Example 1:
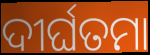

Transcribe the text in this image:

ଦୀର୍ଘତମା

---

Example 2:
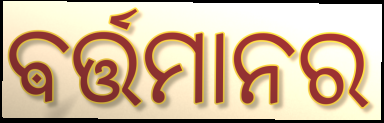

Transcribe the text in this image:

ଵର୍ତ୍ତମାନର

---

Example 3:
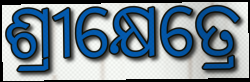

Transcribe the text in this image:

ଶ୍ରୀକ୍ଷେତ୍ରେ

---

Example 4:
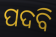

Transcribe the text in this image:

ପଦବି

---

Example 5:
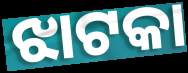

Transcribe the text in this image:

ଝାଟକା